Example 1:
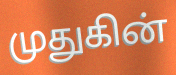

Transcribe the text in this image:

முதுகின்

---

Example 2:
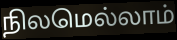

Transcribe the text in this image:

நிலமெல்லாம்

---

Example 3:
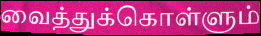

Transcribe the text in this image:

வைத்துக்கொள்ளும்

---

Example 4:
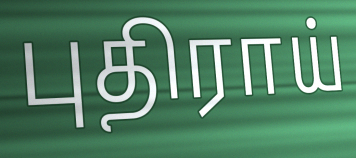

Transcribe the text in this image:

புதிராய்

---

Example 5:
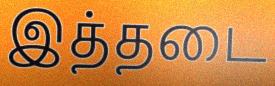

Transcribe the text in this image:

இத்தடை